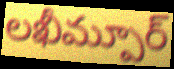
లఖీమ్పూర్